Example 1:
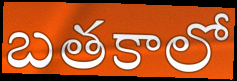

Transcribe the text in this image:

బతకాలో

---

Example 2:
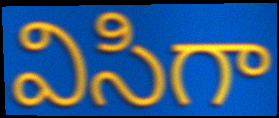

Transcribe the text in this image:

విసిగా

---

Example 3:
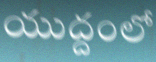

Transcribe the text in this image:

యుద్దంలో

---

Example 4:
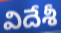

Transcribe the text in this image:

విదేశీ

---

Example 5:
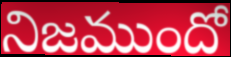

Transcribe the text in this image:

నిజముందో